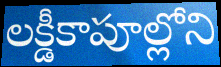
లక్డీకాపూల్లోని